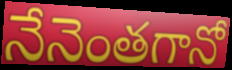
నేనెంతగానో